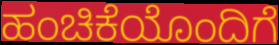
ಹಂಚಿಕೆಯೊಂದಿಗೆ